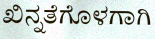
ಖಿನ್ನತೆಗೊಳಗಾಗಿ